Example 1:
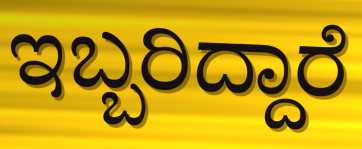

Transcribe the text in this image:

ಇಬ್ಬರಿದ್ದಾರೆ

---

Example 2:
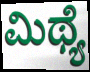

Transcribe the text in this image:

ಮಿಥ್ಯೆ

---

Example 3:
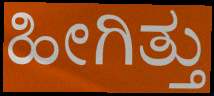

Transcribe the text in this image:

ಹೀಗಿತ್ತು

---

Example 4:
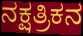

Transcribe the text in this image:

ನಕ್ಷತ್ರಿಕನ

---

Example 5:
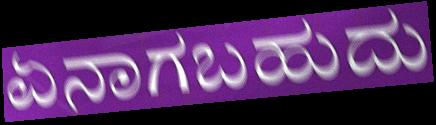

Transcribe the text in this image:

ಏನಾಗಬಹುದು